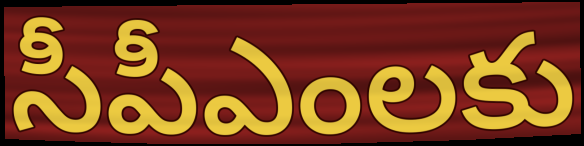
సీపీఎంలకు